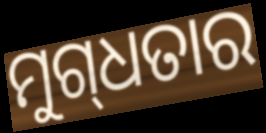
ମୁଗ୍‍ଧତାର